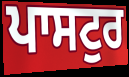
ਪਾਸਟੁਰ